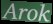
Arok